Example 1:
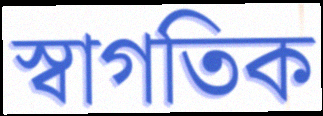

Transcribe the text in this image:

স্বাগতিক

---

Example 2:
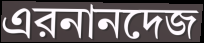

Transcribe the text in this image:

এরনানদেজ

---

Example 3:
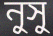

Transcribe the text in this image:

নুসু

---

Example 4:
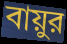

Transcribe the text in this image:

বায়ুর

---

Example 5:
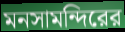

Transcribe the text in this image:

মনসামন্দিরের